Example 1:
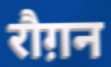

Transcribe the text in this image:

रौग़न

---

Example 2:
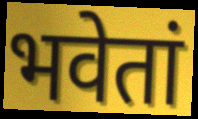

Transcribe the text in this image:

भवेतां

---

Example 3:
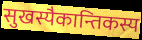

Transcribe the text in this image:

सुखस्यैकान्तिकस्य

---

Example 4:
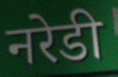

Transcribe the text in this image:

नरेडी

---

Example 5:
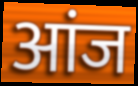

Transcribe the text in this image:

आंज